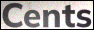
Cents